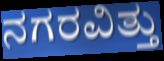
ನಗರವಿತ್ತು